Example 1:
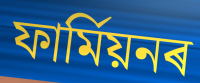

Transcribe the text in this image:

ফাৰ্মিয়নৰ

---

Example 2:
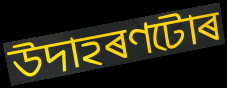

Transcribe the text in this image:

উদাহৰণটোৰ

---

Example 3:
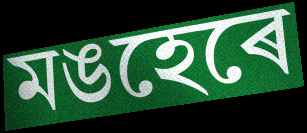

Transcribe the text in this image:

মঙহেৰে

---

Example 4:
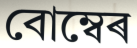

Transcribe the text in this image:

বোম্বেৰ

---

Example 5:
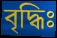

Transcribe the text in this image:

বৃদ্ধিঃ